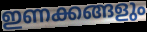
ഇണക്കങ്ങളും